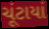
ચૂંટાયાં